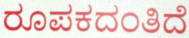
ರೂಪಕದಂತಿದೆ